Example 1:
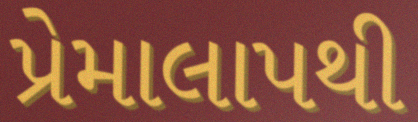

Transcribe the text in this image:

પ્રેમાલાપથી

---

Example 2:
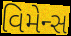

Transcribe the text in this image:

વિમેન્સ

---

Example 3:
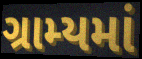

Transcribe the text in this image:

ગ્રામ્યમાં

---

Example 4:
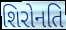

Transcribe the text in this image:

શિરોનતિ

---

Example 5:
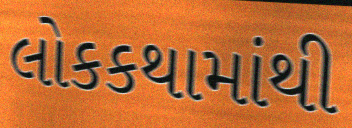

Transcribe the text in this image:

લોકકથામાંથી